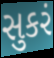
સુકરં